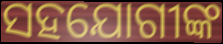
ସହଯୋଗୀଙ୍କ